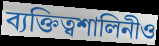
ব্যক্তিত্বশালিনীও